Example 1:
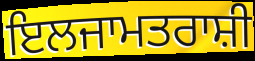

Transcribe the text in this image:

ਇਲਜਾਮਤਰਾਸ਼ੀ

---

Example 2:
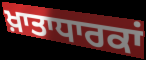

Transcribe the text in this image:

ਖ਼ਾਤਾਧਾਰਕਾਂ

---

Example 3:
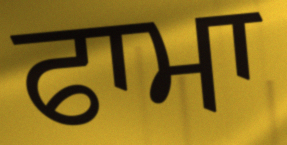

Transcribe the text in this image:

ਫਾਮਾ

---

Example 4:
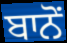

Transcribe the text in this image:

ਬਾਨੋਂ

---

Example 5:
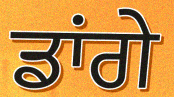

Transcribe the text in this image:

ਡਾਂਗੇ